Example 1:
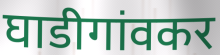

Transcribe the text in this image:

घाडीगांवकर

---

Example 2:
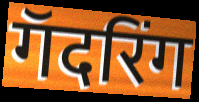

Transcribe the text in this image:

गॅदरिंग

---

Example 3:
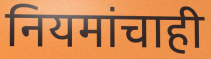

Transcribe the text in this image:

नियमांचाही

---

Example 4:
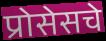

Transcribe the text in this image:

प्रोसेसचे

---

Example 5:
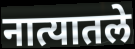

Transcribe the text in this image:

नात्यातले